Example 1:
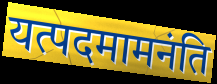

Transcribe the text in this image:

यत्पदमामनंति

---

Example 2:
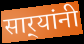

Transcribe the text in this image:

सार्यांनी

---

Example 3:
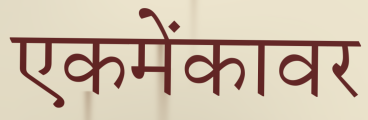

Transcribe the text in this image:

एकमेंकावर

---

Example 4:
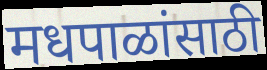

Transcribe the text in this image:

मधपाळांसाठी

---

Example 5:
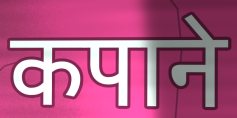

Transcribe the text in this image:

कपाने